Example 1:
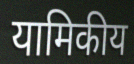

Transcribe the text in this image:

यामिकीय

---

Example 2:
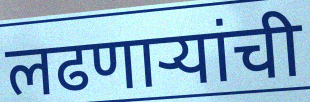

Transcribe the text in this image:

लढणाऱ्यांची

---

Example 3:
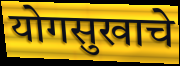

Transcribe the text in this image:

योगसुखाचे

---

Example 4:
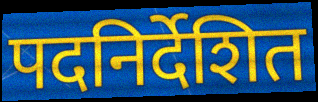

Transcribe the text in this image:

पदनिर्देशित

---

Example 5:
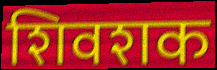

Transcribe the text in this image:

शिवशक